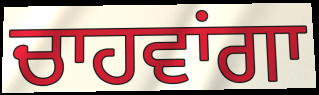
ਚਾਹਵਾਂਗਾ